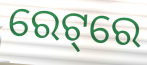
ରେଟ୍‌ରେ